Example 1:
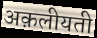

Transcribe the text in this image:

अक़लीयती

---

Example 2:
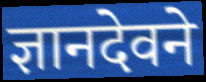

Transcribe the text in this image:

ज्ञानदेवने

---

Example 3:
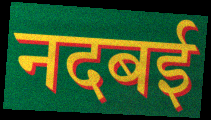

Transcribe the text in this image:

नदबई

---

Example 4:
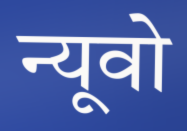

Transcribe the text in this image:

न्यूवो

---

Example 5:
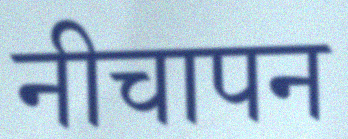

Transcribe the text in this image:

नीचापन